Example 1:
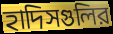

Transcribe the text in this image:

হাদিসগুলির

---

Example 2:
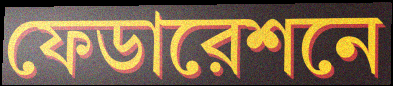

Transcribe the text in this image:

ফেডারেশনে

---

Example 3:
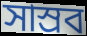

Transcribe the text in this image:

সাস্রব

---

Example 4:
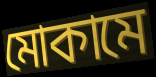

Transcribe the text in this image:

মোকামে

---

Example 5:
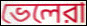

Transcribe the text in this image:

ভেলেরা